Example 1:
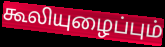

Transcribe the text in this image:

கூலியுழைப்பும்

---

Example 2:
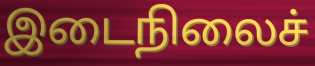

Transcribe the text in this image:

இடைநிலைச்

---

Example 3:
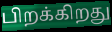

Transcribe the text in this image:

பிறக்கிறது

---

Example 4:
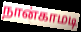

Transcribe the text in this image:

நான்காமடி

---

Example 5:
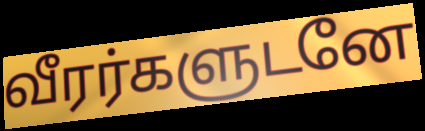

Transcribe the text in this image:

வீரர்களுடனே